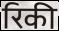
रिकी